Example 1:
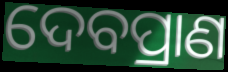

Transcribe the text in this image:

ଦେବପ୍ରାଣ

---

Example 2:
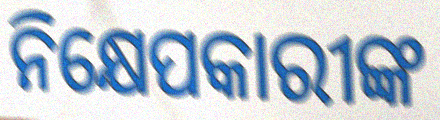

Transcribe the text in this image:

ନିକ୍ଷେପକାରୀଙ୍କ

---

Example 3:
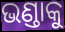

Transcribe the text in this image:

ଭଣ୍ଡାକୁ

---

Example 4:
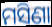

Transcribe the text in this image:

ମସିଣା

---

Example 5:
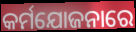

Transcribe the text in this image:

କର୍ମଯୋଜନାରେ